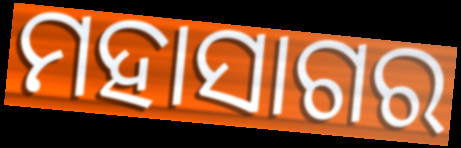
ମହାସାଗର